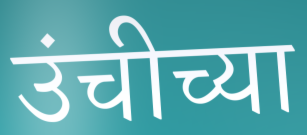
उंचीच्या